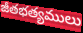
జీతభత్యములు